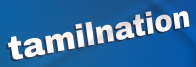
tamilnation